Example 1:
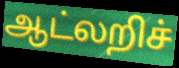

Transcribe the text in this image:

ஆட்லறிச்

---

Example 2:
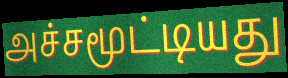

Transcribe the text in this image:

அச்சமூட்டியது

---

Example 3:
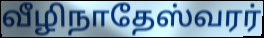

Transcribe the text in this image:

வீழிநாதேஸ்வரர்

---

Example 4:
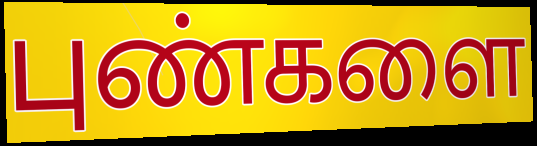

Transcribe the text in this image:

புண்களை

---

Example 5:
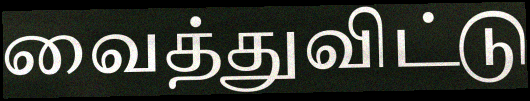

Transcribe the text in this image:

வைத்துவிட்டு